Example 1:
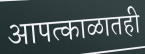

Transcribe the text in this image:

आपत्काळातही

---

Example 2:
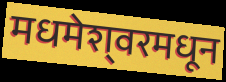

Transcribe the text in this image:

मधमेश्वरमधून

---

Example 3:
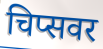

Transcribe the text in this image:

चिप्सवर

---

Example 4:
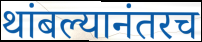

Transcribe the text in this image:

थांबल्यानंतरच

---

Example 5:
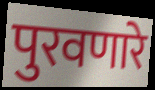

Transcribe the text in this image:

पुरवणारे